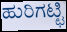
ಹುರಿಗಟ್ಟಿ